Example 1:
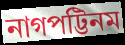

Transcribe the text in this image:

নাগপট্টিনম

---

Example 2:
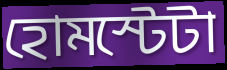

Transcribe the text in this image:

হোমস্টেটা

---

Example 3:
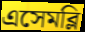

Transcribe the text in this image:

এসেমব্লি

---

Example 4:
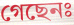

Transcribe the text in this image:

গেছেনঃ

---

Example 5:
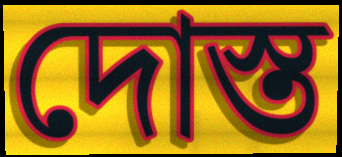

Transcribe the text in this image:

দোস্ত